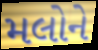
મલોને